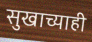
सुखाच्याही